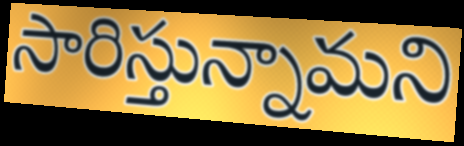
సారిస్తున్నామని